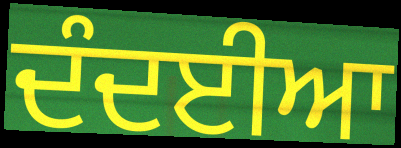
ਦੰਦਈਆ